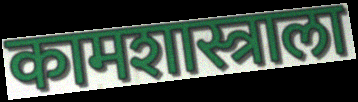
कामशास्त्राला